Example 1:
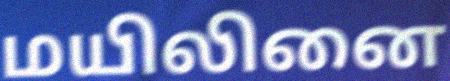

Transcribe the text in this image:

மயிலினை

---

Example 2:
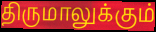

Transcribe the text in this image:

திருமாலுக்கும்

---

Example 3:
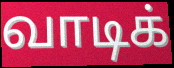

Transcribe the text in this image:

வாடிக்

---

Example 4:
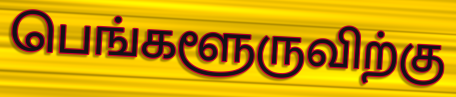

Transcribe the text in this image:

பெங்களூருவிற்கு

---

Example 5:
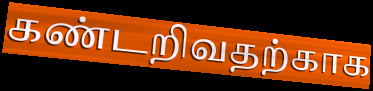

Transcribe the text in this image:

கண்டறிவதற்காக